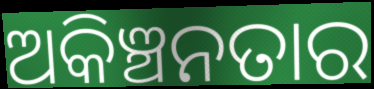
ଅକିଞ୍ଚନତାର